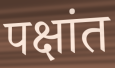
पक्षांत